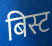
बिस्ट